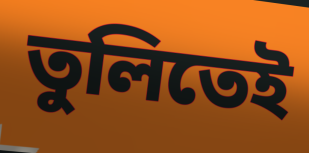
তুলিতেই